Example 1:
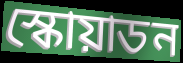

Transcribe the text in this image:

স্কোয়াডন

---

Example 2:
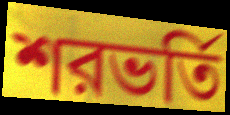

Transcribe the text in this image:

শরভর্তি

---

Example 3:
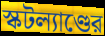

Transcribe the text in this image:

স্কটল্যাণ্ডের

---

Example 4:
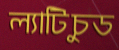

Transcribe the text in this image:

ল্যাটিচুড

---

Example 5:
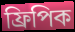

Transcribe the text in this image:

ফ্রিপিক